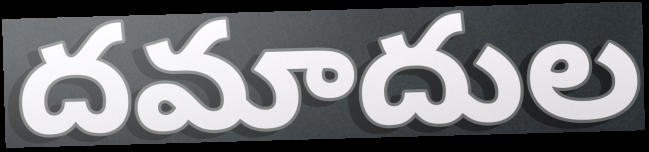
దమాదుల